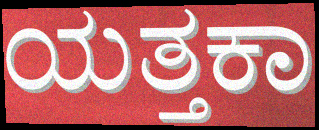
ಯತ್ತಕಾ